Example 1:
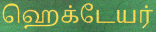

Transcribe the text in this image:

ஹெக்டேயர்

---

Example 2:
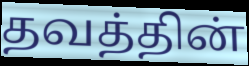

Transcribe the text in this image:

தவத்தின்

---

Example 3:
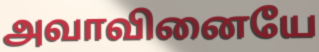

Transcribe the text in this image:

அவாவினையே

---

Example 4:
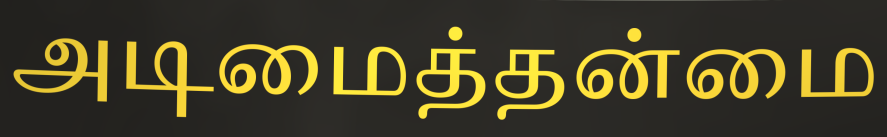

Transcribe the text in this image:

அடிமைத்தன்மை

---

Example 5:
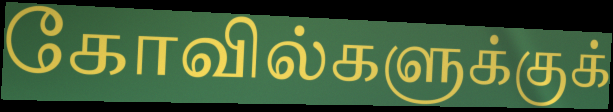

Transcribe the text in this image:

கோவில்களுக்குக்